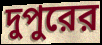
দুপুরের